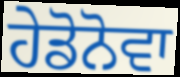
ਹੇਡੋਨੋਵਾ